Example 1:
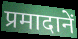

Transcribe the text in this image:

प्रमादानें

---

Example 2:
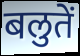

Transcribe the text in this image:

बलुतें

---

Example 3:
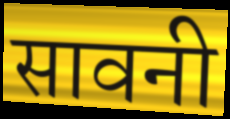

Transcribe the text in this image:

सावनी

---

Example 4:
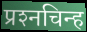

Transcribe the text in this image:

प्रश्नचिन्ह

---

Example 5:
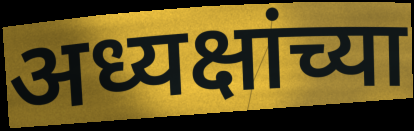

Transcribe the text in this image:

अध्यक्षांच्या